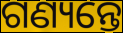
ଗଣ୍ୟନ୍ତେ